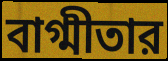
বাগ্মীতার